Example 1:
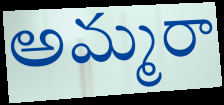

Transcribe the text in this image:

అమ్మరా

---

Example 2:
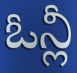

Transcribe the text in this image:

ఓన్లీ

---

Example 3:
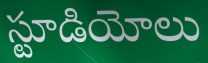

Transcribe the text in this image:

స్టూడియోలు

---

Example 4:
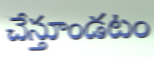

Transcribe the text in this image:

చేస్తూండటం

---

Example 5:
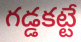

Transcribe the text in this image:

గడ్డకట్టే